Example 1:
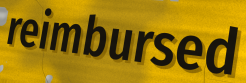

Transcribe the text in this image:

reimbursed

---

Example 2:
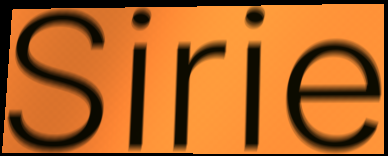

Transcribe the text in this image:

Sirie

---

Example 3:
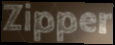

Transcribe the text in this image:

Zipper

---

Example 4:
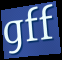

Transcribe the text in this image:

gff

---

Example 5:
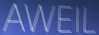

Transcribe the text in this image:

AWEIL